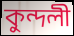
কুন্দলী